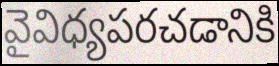
వైవిధ్యపరచడానికి